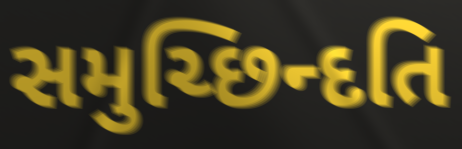
સમુચ્છિન્દતિ